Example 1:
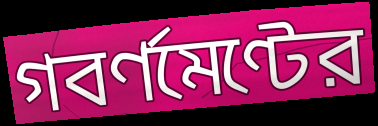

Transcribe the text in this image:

গবর্ণমেণ্টের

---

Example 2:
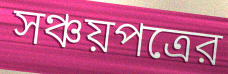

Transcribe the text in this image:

সঞ্চয়পত্রের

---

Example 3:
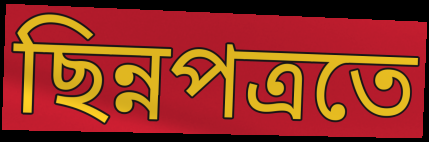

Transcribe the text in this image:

ছিন্নপত্রতে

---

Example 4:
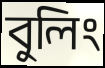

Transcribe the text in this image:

বুলিং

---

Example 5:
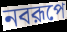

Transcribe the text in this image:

নবরূপে